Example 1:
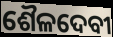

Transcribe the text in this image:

ଶୈଳଦେବୀ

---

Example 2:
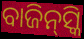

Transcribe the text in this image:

ବାଜିନ୍‌ସ୍କି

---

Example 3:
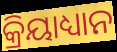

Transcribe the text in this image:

କ୍ରିୟାଧ୍ୟାନ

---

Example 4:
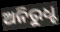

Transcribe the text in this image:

ଅନିରୁଧ୍ହ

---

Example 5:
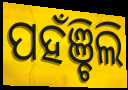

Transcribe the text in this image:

ପହଁଞ୍ଚିଲି